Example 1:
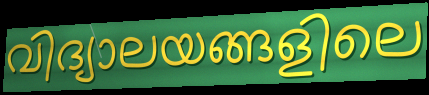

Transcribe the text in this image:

വിദ്യാലയങ്ങളിലെ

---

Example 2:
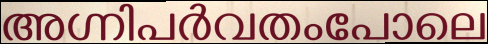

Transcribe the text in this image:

അഗ്നിപർവതംപോലെ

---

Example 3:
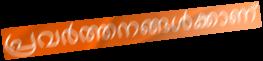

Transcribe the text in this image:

പ്രവർത്തനങ്ങൾക്കാണ്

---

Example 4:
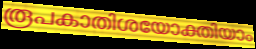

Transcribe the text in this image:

രൂപകാതിശയോക്തിയാം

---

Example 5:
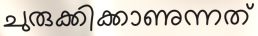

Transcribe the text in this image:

ചുരുക്കിക്കാണുന്നത്